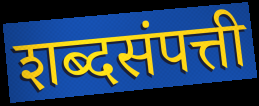
शब्दसंपत्ती